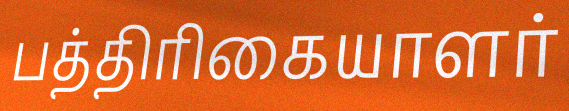
பத்திரிகையாளர்